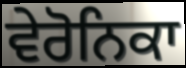
ਵੇਰੋਨਿਕਾ